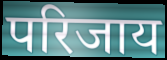
परिजाय